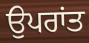
ਉਪਰਾਂਤ